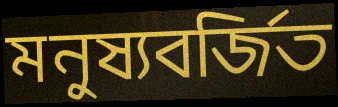
মনুষ্যবর্জিত